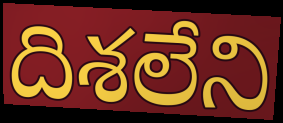
దిశలేని